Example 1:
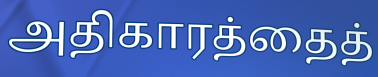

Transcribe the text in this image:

அதிகாரத்தைத்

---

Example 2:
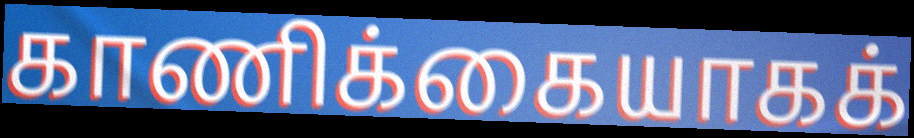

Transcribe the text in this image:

காணிக்கையாகக்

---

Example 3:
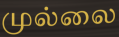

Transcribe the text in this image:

முல்லை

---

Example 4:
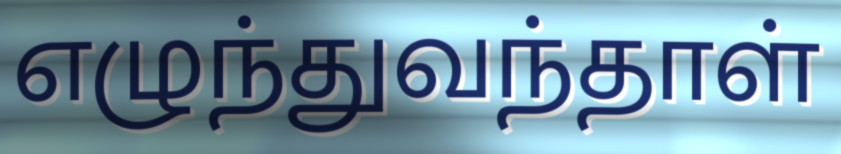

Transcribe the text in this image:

எழுந்துவந்தாள்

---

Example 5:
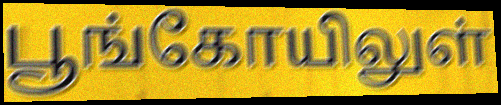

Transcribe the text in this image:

பூங்கோயிலுள்